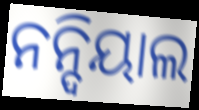
ନନ୍ଦିୟାଲ